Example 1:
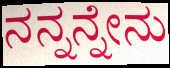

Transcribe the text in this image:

ನನ್ನನ್ನೇನು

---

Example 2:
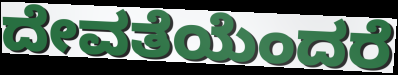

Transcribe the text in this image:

ದೇವತೆಯೆಂದರೆ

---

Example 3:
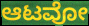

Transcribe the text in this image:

ಆಟವೋ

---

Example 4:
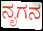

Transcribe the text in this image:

ನೃಗನ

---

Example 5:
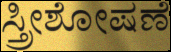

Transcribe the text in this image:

ಸ್ತ್ರೀಶೋಷಣೆ